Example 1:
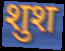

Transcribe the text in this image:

शुश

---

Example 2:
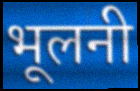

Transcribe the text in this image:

भूलनी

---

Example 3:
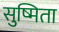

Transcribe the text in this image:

सुष्मिता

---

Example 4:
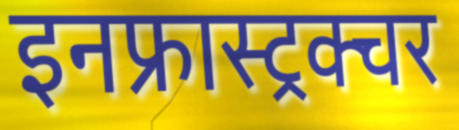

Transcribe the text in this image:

इनफ्रास्ट्रक्चर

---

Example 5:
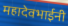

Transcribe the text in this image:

महादेवभाईनी